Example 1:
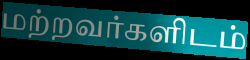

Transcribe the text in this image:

மற்றவர்களிடம்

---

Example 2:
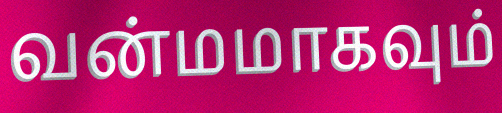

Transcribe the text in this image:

வன்மமாகவும்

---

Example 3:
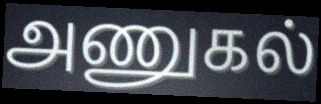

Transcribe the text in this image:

அணுகல்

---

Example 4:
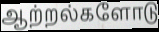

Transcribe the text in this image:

ஆற்றல்களோடு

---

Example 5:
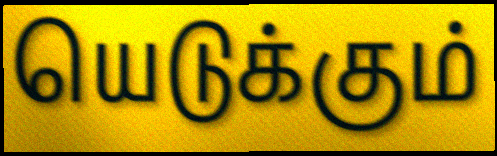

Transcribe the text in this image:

யெடுக்கும்